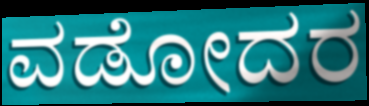
ವಡೋದರ